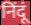
निंदूं